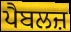
ਪੈਬਲਜ਼